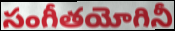
సంగీతయోగినీ